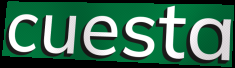
cuesta